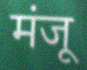
मंजू